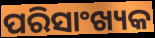
ପରିସାଂଖ୍ୟକ